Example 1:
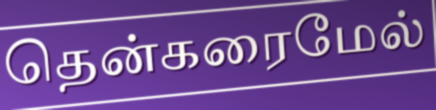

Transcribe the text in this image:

தென்கரைமேல்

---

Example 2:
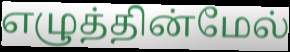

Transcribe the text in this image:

எழுத்தின்மேல்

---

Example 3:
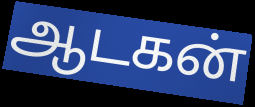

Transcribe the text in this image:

ஆடகன்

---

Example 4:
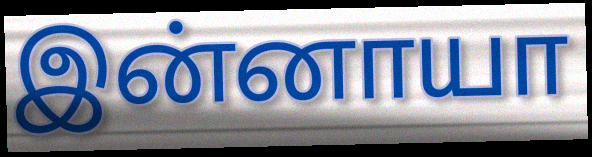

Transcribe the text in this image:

இன்னாயா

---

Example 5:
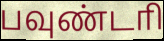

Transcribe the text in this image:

பவுண்டரி